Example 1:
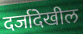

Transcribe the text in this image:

दर्जादेखील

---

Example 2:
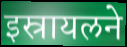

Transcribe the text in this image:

इस्रायलने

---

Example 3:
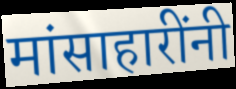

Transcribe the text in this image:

मांसाहारींनी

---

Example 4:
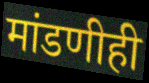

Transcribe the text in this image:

मांडणीही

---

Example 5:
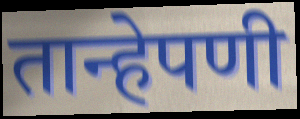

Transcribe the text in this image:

तान्हेपणी